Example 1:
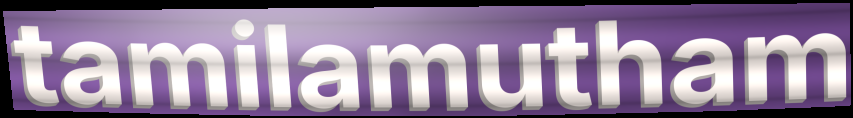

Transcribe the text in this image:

tamilamutham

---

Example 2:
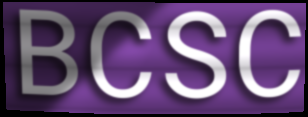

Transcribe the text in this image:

BCSC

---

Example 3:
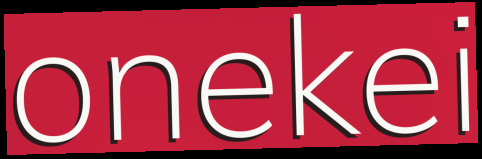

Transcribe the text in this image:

onekei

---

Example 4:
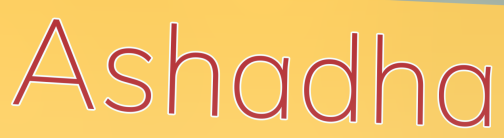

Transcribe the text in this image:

Ashadha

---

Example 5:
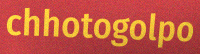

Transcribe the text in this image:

chhotogolpo